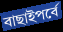
বাছাইপর্বে